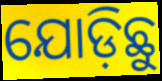
ଯୋଡ଼ିଛୁ